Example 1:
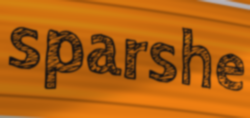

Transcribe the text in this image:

sparshe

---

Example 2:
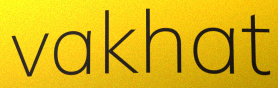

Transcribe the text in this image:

vakhat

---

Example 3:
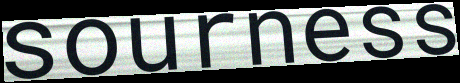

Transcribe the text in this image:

sourness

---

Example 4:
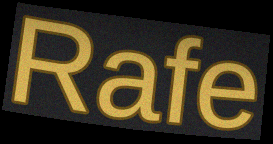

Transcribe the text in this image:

Rafe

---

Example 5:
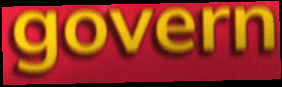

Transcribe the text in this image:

govern